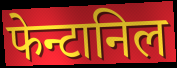
फेन्टानिल